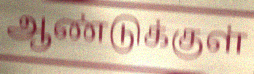
ஆண்டுக்குள்